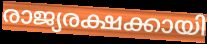
രാജ്യരക്ഷക്കായി